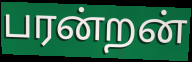
பரன்றன்